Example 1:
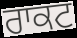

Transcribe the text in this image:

ਰਾਕਟ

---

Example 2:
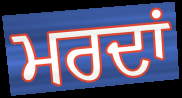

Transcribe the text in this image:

ਮਰਦਾਂ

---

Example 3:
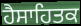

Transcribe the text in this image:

ਹੈਸਾਹਿਤਕ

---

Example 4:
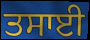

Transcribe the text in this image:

ਤਸਾਈ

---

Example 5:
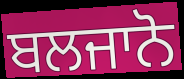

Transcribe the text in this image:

ਬਲਜਾਨੋ